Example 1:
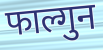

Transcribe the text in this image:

फाल्गुन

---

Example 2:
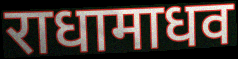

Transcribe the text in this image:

राधामाधव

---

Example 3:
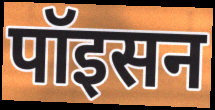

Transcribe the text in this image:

पॉइसन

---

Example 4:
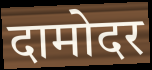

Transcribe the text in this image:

दामोदर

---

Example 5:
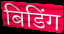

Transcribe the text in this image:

बिडिंग